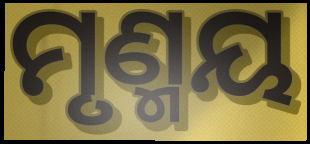
ମୃଣ୍ମୟ